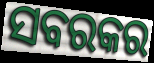
ସବରକର